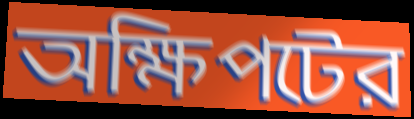
অক্ষিপটের